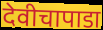
देवीचापाडा